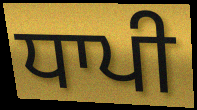
ਧਾਪੀ